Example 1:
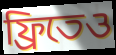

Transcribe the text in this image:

ফ্রিতেও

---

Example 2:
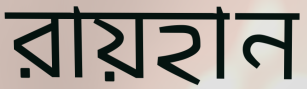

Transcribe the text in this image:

রায়হান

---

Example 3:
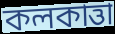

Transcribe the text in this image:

কলকাত্তা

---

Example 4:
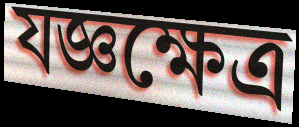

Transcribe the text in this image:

যজ্ঞক্ষেত্র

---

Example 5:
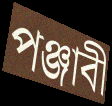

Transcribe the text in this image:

পঞ্জাবী